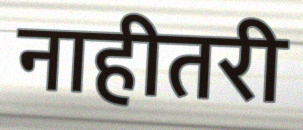
नाहीतरी